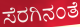
ಸೆರಗಿನಂತೆ